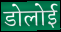
डोलोई